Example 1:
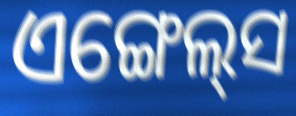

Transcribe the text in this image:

ଏଙ୍ଗେଲ୍‌ସ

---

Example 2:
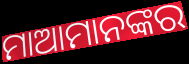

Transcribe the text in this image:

ମାଆମାନଙ୍କର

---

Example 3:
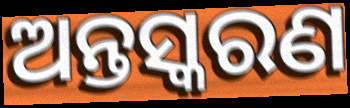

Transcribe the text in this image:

ଅନ୍ତସ୍କରଣ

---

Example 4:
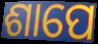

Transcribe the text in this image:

ଶାପେ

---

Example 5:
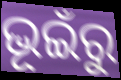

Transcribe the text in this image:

ଭୂଇଁରୁ